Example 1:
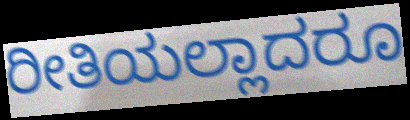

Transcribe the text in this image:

ರೀತಿಯಲ್ಲಾದರೂ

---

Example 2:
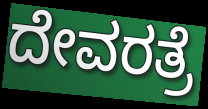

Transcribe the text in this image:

ದೇವರತ್ರೆ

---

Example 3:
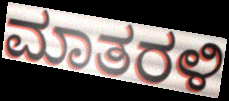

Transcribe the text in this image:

ಮಾತರಳಿ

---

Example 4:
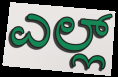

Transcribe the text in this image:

ಎಲ್ಲ್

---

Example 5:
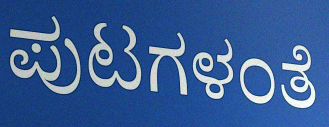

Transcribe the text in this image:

ಪುಟಗಳಂತೆ